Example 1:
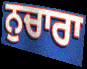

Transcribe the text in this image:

ਨੁਚਾਰਾ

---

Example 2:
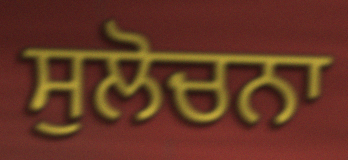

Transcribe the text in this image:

ਸੁਲੋਚਨਾ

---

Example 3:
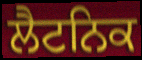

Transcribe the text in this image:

ਲੈਟਨਿਕ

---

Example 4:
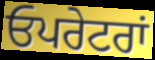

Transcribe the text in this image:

ਓਪਰੇਟਰਾਂ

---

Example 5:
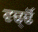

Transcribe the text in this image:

ਵਢ੍ਢੋਁ